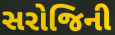
સરોજિની